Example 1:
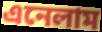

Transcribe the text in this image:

এনেলাম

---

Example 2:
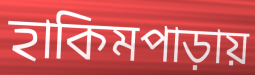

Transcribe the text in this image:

হাকিমপাড়ায়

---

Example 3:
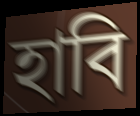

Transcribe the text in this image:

হাবি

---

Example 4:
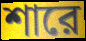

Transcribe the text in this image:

শারে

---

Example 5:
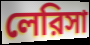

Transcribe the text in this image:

লেরিসা